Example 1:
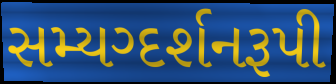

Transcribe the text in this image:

સમ્યગ્દર્શનરૂપી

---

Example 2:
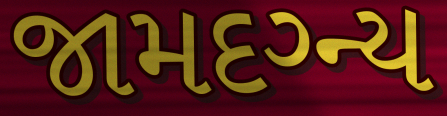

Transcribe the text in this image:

જામદગ્ન્ય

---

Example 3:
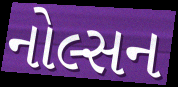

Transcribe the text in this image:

નોલ્સન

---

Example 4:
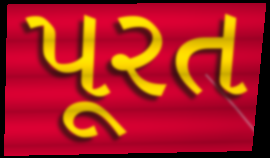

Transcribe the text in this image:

પૂરત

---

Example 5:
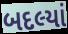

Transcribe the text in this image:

બદલ્યાં